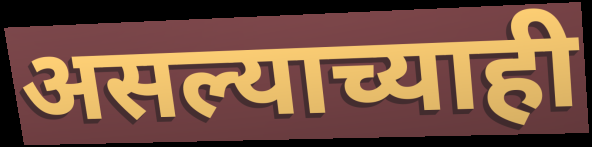
असल्याच्याही